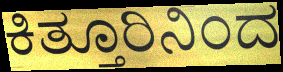
ಕಿತ್ತೂರಿನಿಂದ